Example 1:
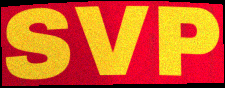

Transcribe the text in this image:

SVP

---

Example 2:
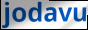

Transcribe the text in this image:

jodavu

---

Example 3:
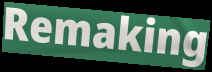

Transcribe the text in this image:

Remaking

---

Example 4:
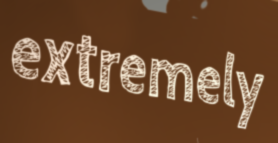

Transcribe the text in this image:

extremely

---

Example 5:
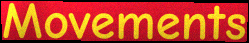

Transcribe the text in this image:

Movements